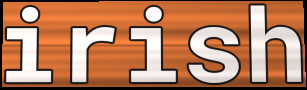
irish